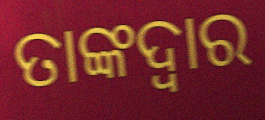
ତାଙ୍କଦ୍ୱାର